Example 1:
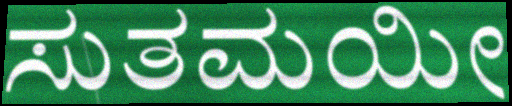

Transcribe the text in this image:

ಸುತಮಯೀ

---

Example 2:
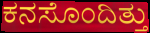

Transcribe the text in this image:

ಕನಸೊಂದಿತ್ತು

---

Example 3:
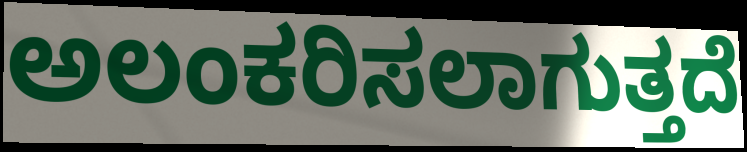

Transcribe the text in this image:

ಅಲಂಕರಿಸಲಾಗುತ್ತದೆ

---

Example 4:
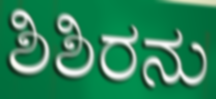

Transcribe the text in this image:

ಶಿಶಿರನು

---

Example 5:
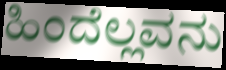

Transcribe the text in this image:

ಹಿಂದೆಲ್ಲವನು